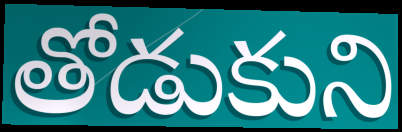
తోడుకుని